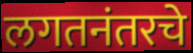
लगतनंतरचे